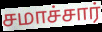
சமாச்சார்